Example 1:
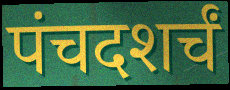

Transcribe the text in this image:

पंचदशर्चं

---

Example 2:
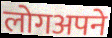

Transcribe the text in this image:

लोगअपने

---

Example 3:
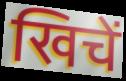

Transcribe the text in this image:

खिचें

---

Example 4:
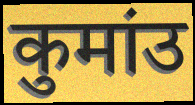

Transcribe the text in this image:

कुमांउ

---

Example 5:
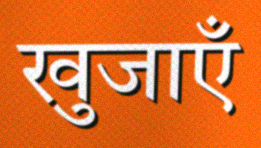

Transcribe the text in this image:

खुजाएँ